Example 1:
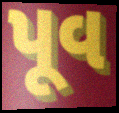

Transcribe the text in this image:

પૂવ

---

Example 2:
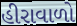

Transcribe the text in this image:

હીરાવાળો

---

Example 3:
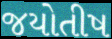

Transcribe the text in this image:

જયોતીષ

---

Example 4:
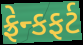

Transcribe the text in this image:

ફ્રેન્કફર્ટ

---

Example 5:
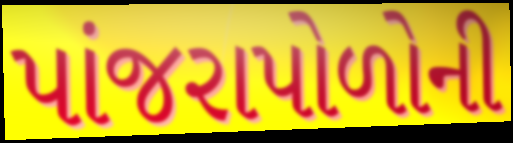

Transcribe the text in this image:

પાંજરાપોળોની